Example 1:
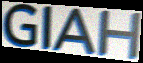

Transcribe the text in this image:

GIAH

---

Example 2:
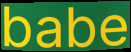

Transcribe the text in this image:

babe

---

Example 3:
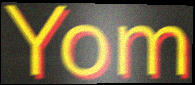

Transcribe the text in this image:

Yom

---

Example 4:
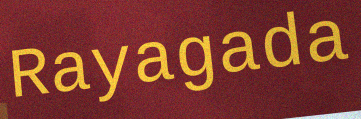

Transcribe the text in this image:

Rayagada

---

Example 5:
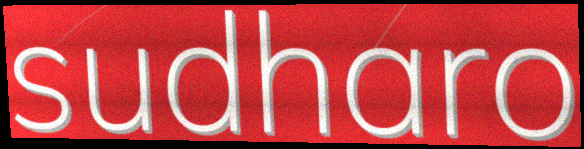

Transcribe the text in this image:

sudharo